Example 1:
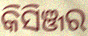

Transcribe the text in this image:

କିସିଞ୍ଜର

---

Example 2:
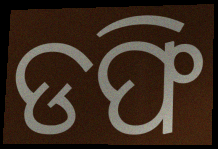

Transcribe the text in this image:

ଡଫି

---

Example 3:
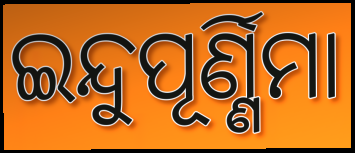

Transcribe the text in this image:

ଇନ୍ଦୁପୂର୍ଣ୍ଣିମା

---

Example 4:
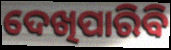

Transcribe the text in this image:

ଦେଖିପାରିବି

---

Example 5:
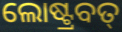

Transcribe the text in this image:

ଲୋଷ୍ଟ୍ରବତ୍